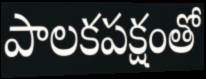
పాలకపక్షంతో